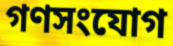
গণসংযোগ